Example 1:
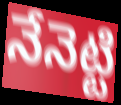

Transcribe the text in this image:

నేనెట్టి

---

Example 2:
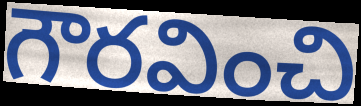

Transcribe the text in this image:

గౌరవించి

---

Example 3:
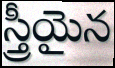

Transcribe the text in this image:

స్త్రీయైన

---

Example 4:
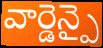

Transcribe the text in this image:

వార్డెన్పై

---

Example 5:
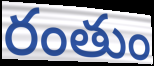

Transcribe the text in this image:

రంతుం